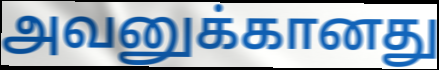
அவனுக்கானது